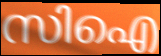
സിഐ